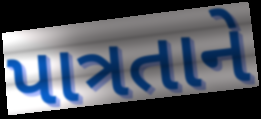
પાત્રતાને